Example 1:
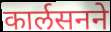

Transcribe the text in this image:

कार्लसनने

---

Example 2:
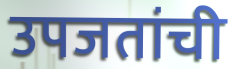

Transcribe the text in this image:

उपजतांची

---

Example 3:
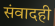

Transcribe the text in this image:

संवादही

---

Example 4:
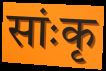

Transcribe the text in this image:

सांःकृ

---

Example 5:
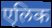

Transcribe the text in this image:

एलिक